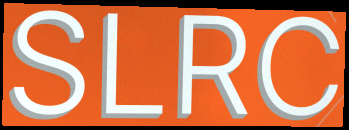
SLRC